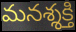
మనశ్శక్తి